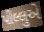
પીલ્લુએ